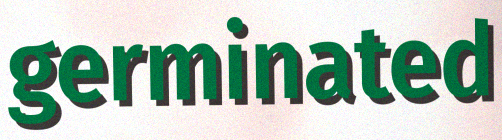
germinated